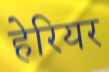
हेरियर